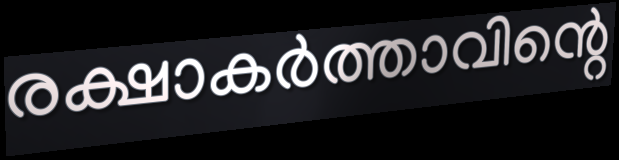
രക്ഷാകർത്താവിന്റെ